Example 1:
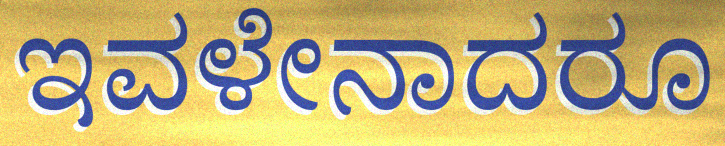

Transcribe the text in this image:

ಇವಳೇನಾದರೂ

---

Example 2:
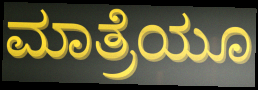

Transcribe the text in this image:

ಮಾತ್ರೆಯೂ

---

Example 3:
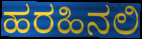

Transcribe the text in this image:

ಹರಹಿನಲಿ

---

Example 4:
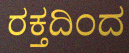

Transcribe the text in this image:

ರಕ್ತದಿಂದ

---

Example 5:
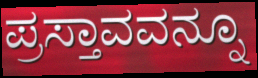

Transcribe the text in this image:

ಪ್ರಸ್ತಾವವನ್ನೂ